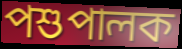
পশুপালক